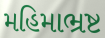
મહિમાભ્રષ્ટ